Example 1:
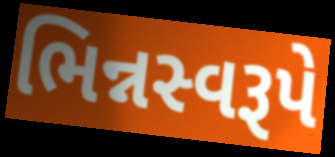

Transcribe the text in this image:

ભિન્નસ્વરૂપે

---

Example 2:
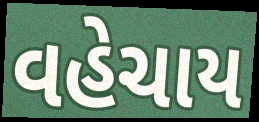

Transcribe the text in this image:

વહેચાય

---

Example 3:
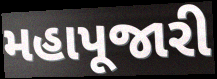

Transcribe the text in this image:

મહાપૂજારી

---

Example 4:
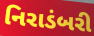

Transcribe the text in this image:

નિરાડંબરી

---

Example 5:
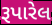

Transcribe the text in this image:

રૂપારેલ